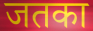
जतका